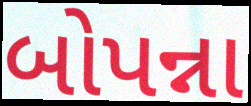
બોપન્ના